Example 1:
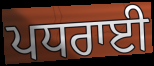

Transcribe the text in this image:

ਪਧਰਾਈ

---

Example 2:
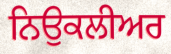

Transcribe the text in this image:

ਨਿਉਕਲੀਅਰ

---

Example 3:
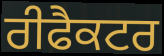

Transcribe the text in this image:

ਰੀਫੈਕਟਰ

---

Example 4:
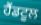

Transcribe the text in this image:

ਹੈਂਡਟੂਲ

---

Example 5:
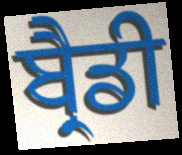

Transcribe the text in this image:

ਬ੍ਰੈਡੀ